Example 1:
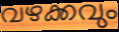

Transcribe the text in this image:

വഴക്കവും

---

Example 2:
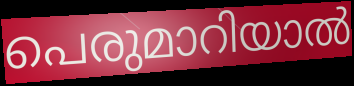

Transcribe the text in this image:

പെരുമാറിയാൽ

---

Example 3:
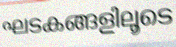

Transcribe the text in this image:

ഘടകങ്ങളിലൂടെ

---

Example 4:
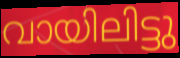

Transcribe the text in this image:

വായിലിട്ടു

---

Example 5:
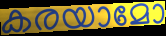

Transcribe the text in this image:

കരയാമോ